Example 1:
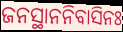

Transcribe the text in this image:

ଜନସ୍ଥାନନିବାସିନଃ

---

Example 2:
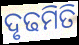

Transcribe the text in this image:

ଦୃଢମିତି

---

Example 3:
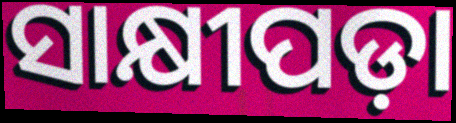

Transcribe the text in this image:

ସାକ୍ଷୀପଡ଼ା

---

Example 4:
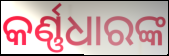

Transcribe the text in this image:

କର୍ଣ୍ଣଧାରଙ୍କ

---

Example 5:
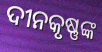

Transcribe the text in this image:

ଦୀନକୃଷ୍ଣଙ୍କ